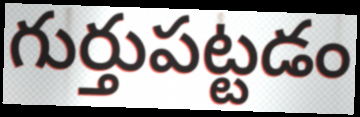
గుర్తుపట్టడం